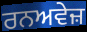
ਰਨਅਵੇਜ਼